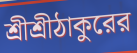
শ্রীশ্রীঠাকুরের